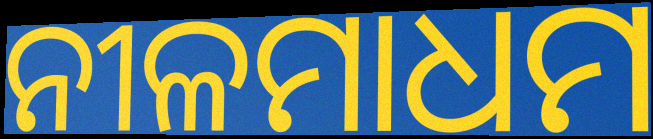
ନୀଳମାଧମ